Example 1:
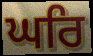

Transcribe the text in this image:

ਘਰਿ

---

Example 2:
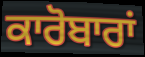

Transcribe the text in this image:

ਕਾਰੋਬਾਰਾਂ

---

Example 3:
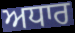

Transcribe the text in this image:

ਅਧਾਰ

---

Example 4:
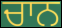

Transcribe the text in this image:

ਚਾਨ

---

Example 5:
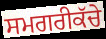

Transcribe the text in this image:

ਸਮਗਰੀਕੱਚੇ